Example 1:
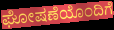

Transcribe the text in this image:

ಘೋಷಣೆಯೊಂದಿಗೆ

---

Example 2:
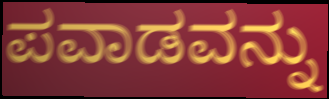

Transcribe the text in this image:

ಪವಾಡವನ್ನು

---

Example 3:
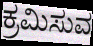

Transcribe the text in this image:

ಕ್ರಮಿಸುವ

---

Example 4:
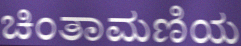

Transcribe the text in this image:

ಚಿಂತಾಮಣಿಯ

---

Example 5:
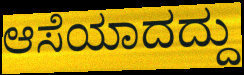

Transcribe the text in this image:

ಆಸೆಯಾದದ್ದು